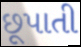
છૂપાતી